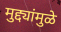
मुद्द्यांमुळे